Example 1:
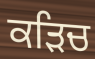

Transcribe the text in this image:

ਕੜਿਚ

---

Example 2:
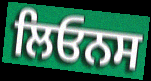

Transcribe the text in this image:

ਲਿਓਨਸ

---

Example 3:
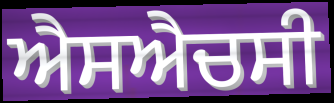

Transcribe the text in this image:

ਐਸਐਚਸੀ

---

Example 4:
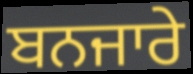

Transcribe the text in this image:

ਬਨਜਾਰੇ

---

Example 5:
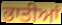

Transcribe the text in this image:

ਭਾਤੀਆਂ